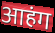
आहंग